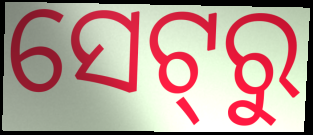
ସେଟ୍‌ରୁ